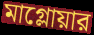
মাগ্লোয়ার